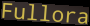
Fullora